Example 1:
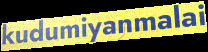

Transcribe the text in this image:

kudumiyanmalai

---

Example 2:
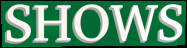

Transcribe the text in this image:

SHOWS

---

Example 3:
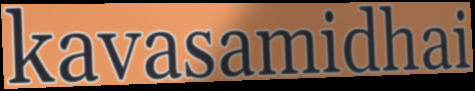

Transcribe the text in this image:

kavasamidhai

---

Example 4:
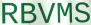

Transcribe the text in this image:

RBVMS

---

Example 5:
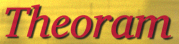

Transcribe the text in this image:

Theoram